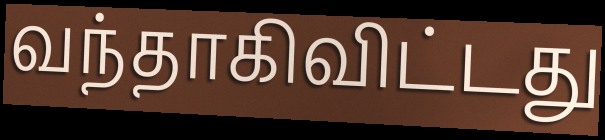
வந்தாகிவிட்டது